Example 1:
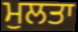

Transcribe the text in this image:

ਮੁਲਤਾ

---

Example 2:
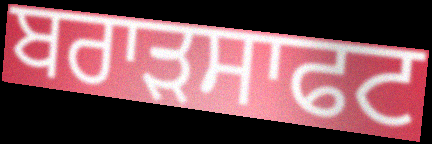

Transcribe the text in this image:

ਬਰਾੜਸਾਫਟ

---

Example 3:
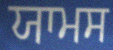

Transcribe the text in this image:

ਯਾਮਸ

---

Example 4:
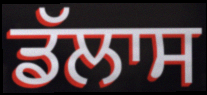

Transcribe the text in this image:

ਡੱਲਾਸ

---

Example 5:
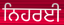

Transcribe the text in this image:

ਨਿਹਰਈ